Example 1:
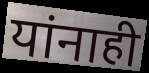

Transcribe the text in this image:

यांनाही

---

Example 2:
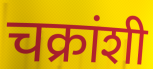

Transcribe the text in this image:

चक्रांशी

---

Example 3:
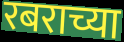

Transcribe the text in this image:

रबराच्या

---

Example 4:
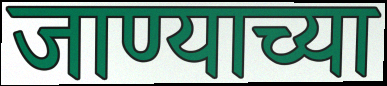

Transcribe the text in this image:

जाण्याच्या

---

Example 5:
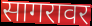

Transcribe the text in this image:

सागरावर